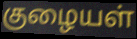
குழையள்